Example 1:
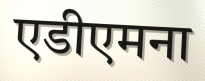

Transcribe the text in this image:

एडीएमना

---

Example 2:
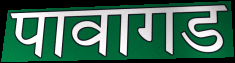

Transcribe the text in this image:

पावागड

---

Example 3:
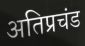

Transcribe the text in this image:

अतिप्रचंड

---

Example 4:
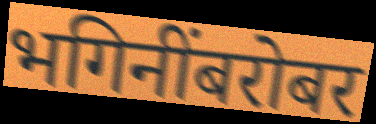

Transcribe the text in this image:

भगिनींबरोबर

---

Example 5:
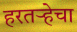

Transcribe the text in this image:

हरतऱ्हेचा